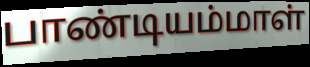
பாண்டியம்மாள்